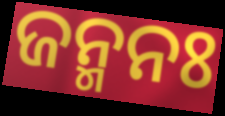
ଜନ୍ମନଃ